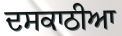
ਦਸਕਾਠੀਆ